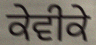
ਕੇਵੀਕੇ